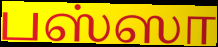
பஸ்ஸா